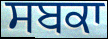
ਸਬਕਾ